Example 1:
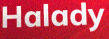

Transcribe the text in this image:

Halady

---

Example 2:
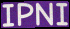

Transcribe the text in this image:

IPNI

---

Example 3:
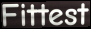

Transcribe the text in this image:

Fittest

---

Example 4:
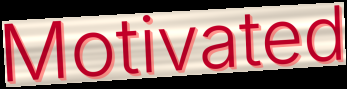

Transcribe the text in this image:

Motivated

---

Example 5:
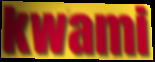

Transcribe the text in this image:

kwami